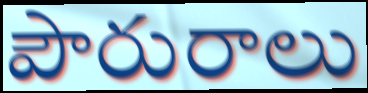
పౌరురాలు